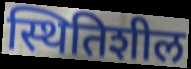
स्थितिशील